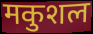
मकुशल